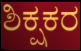
ಶಿಕ್ಷಕರ